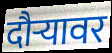
दौऱ्यावर